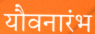
यौवनारंभ